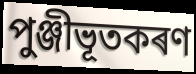
পুঞ্জীভূতকৰণ